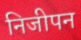
निजीपन